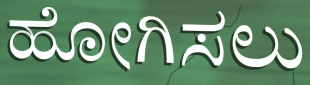
ಹೋಗಿಸಲು